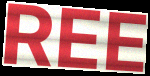
REE